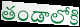
తండాలోకి